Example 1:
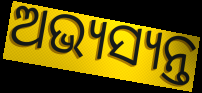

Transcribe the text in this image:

ଅଭ୍ୟସ୍ୟନ୍ତ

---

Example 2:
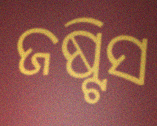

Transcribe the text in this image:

ଜଷ୍ଟିସ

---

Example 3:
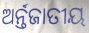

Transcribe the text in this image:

ଅର୍ନ୍ତଜାତୀୟ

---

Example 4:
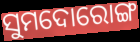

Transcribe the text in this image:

ସୁମଦୋରୋଙ୍ଗ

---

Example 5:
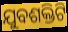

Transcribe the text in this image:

ଯୁବଶକ୍ତିଟି